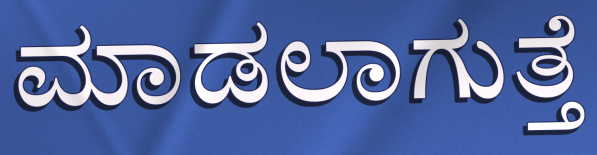
ಮಾಡಲಾಗುತ್ತೆ